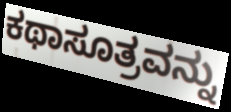
ಕಥಾಸೂತ್ರವನ್ನು